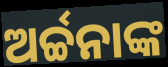
ଅର୍ଚ୍ଚନାଙ୍କ